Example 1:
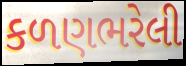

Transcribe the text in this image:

કળણભરેલી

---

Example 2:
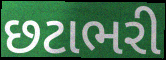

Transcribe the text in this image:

છટાભરી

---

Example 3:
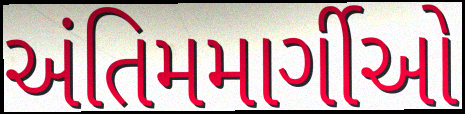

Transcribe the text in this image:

અંતિમમાર્ગીઓ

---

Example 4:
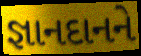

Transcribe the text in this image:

જ્ઞાનદાનને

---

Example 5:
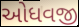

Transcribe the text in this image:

ઓધવજી